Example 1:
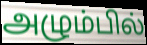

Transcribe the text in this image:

அழும்பில்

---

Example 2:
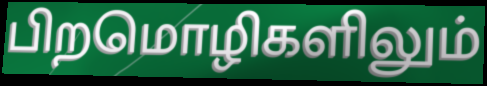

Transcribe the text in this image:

பிறமொழிகளிலும்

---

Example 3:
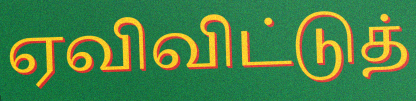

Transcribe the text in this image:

ஏவிவிட்டுத்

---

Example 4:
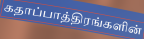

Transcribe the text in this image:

கதாப்பாத்திரங்களின்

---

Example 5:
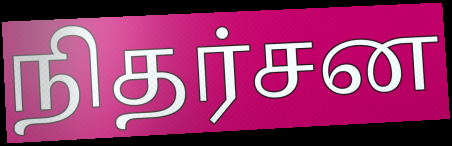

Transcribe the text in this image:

நிதர்சன